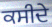
ਕਸੀਦੇ